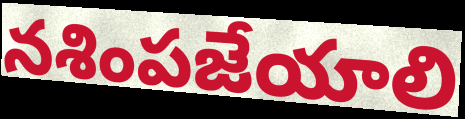
నశింపజేయాలి